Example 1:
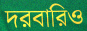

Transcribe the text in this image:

দরবারিও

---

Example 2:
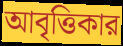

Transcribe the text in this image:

আবৃত্তিকার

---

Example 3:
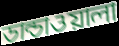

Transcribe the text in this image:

ডান্ডাওয়ালা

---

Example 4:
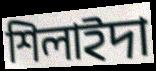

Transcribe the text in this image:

শিলাইদা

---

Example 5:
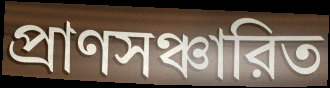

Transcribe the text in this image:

প্রাণসঞ্চারিত